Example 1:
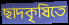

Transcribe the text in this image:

ছাদকৃষিতে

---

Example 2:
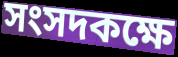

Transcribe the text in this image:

সংসদকক্ষে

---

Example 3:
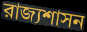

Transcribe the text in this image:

রাজ্যশাসন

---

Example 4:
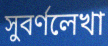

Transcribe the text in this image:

সুবর্ণলেখা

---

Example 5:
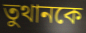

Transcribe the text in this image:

তুথানকে